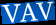
VAV